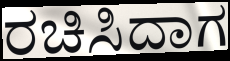
ರಚಿಸಿದಾಗ